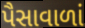
પૈસાવાળાં